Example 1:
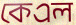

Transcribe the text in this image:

কেএল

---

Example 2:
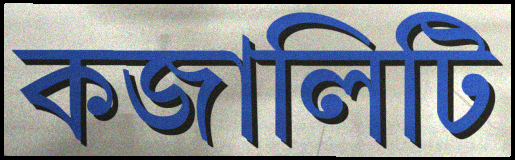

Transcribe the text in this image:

কজালিটি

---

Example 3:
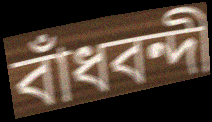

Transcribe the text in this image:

বাঁধবন্দী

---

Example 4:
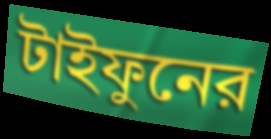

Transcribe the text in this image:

টাইফুনের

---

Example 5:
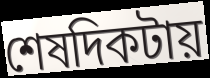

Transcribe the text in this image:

শেষদিকটায়